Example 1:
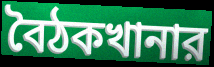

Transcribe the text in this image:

বৈঠকখানার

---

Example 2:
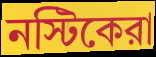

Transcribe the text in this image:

নস্টিকেরা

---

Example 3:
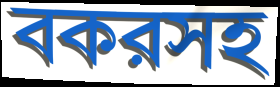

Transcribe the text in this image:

বকরসহ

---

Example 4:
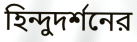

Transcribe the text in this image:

হিন্দুদর্শনের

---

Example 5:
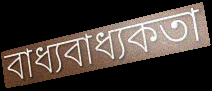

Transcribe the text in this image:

বাধ্যবাধ্যকতা